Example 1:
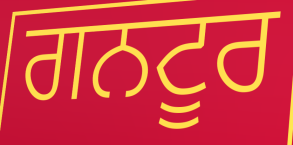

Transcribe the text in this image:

ਗਨਟੂਰ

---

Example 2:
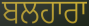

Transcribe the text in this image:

ਬਲਹਾਰਾ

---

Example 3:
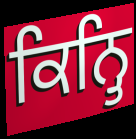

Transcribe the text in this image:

ਕਿਨ੍ਤਿ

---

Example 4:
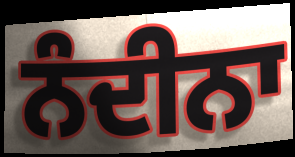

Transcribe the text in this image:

ਨੰਦੀਨਾ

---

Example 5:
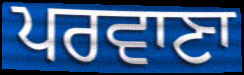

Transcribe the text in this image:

ਪਰਵਾਣਾ